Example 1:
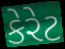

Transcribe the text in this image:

કેરેટ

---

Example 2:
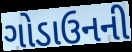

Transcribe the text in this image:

ગોડાઉનની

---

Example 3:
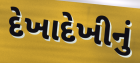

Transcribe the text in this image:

દેખાદેખીનું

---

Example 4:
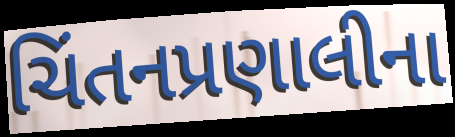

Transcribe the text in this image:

ચિંતનપ્રણાલીના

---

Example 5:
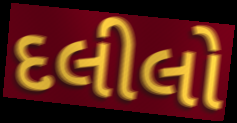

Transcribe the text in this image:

દલીલો